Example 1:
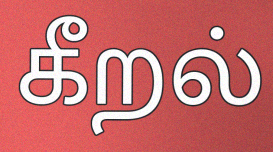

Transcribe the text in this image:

கீறல்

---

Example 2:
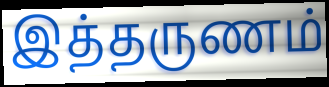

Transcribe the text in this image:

இத்தருணம்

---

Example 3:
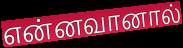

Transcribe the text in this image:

என்னவானால்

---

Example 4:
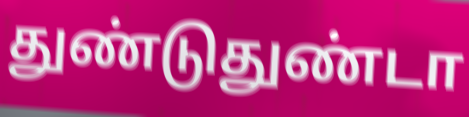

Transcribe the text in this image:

துண்டுதுண்டா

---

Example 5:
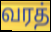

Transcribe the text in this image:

வரத்